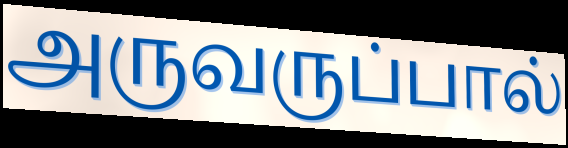
அருவருப்பால்